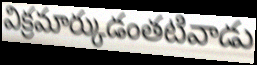
విక్రమార్కుడంతటివాడు